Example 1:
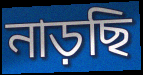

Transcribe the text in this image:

নাড়ছি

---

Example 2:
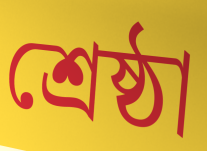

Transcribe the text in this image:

শ্রেষ্ঠা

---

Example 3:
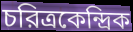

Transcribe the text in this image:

চরিত্রকেন্দ্রিক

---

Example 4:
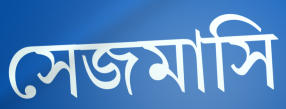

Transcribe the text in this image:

সেজমাসি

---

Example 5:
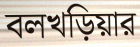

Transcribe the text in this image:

বলখড়িয়ার